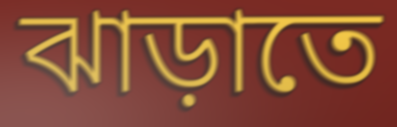
ঝাড়াতে